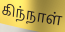
கிந்நாள்